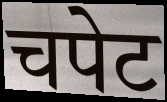
चपेट